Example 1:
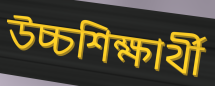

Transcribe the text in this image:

উচ্চশিক্ষার্থী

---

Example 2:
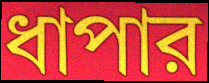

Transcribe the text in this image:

ধাপার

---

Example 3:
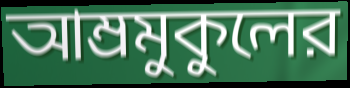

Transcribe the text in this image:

আম্রমুকুলের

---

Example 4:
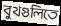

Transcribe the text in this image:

বুথগুলিতে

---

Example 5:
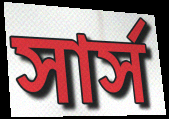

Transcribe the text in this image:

সার্স